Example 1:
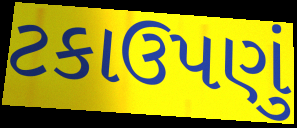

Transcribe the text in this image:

ટકાઉપણું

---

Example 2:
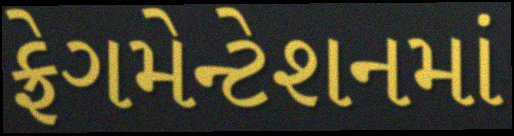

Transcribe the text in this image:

ફ્રેગમેન્ટેશનમાં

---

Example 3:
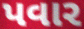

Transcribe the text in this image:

પવાર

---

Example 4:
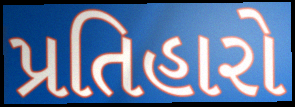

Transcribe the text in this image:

પ્રતિહારો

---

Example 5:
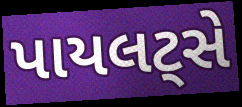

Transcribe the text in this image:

પાયલટ્સે